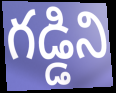
గడ్డిని